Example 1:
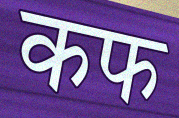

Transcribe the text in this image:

कफ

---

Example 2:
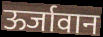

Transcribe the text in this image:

ऊर्जावान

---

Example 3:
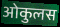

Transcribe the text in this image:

ओकुलस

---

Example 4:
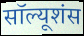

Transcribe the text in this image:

सॉल्यूशंस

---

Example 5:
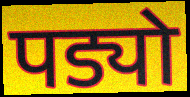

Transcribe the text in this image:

पड्यो